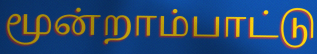
மூன்றாம்பாட்டு